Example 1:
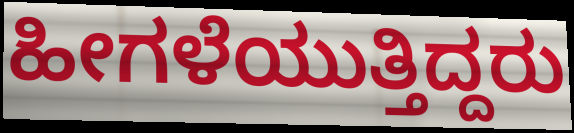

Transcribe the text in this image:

ಹೀಗಳೆಯುತ್ತಿದ್ದರು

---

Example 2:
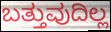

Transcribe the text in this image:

ಬತ್ತುವುದಿಲ್ಲ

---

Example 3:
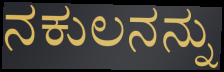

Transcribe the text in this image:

ನಕುಲನನ್ನು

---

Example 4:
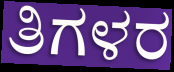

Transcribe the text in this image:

ತಿಗಳರ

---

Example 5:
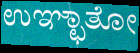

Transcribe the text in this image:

ಉಞ್ಛಾತೋ